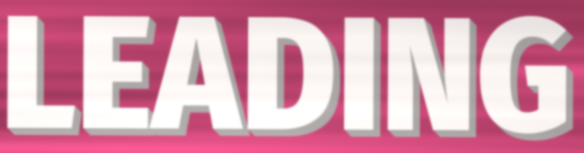
LEADING